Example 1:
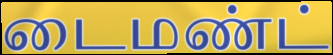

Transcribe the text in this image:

டைமண்ட்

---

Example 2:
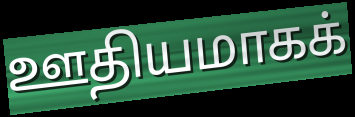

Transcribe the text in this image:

ஊதியமாகக்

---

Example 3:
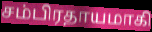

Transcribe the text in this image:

சம்பிரதாயமாகி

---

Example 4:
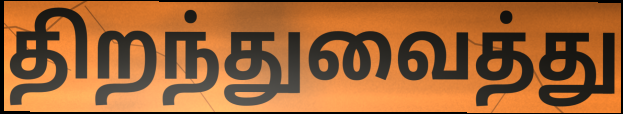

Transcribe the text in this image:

திறந்துவைத்து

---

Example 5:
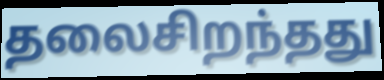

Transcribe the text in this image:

தலைசிறந்தது